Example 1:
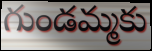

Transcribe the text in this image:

గుండమ్మకు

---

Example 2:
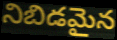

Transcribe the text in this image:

నిబిడమైన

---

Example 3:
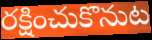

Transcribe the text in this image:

రక్షించుకొనుట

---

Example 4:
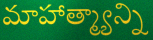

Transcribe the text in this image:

మాహాత్మ్యాన్ని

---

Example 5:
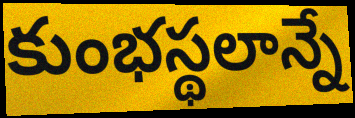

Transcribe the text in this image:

కుంభస్థలాన్నే